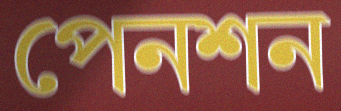
পেনশন